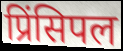
प्रिंसिपल